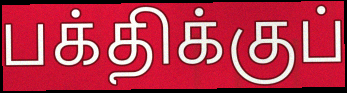
பக்திக்குப்